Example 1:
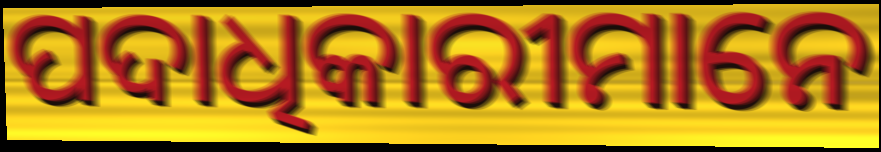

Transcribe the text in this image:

ପଦାଧିକାରୀମାନେ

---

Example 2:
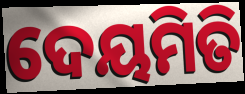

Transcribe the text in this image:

ଦେୟମିତି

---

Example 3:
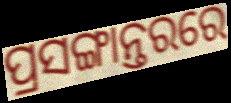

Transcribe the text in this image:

ପ୍ରସଙ୍ଗାନ୍ତରରେ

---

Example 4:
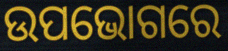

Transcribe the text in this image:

ଉପଭୋଗରେ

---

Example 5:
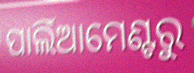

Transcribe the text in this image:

ପାର୍ଲିଆମେଣ୍ଟରୁ